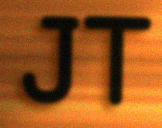
JT